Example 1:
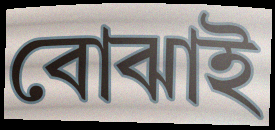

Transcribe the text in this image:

বোঝাই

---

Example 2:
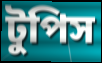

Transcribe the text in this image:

টুপিস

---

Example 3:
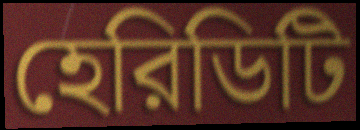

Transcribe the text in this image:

হেরিডিটি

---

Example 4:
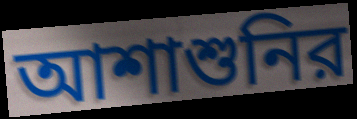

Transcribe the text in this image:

আশাশুনির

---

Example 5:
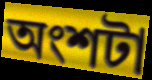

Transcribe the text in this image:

অংশটা